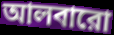
আলবারো